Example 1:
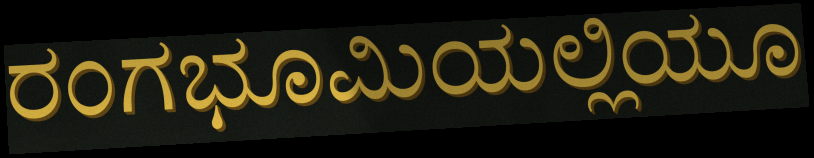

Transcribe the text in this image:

ರಂಗಭೂಮಿಯಲ್ಲಿಯೂ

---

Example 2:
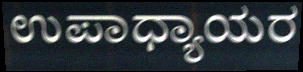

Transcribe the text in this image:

ಉಪಾಧ್ಯಾಯರ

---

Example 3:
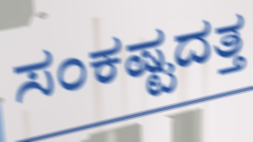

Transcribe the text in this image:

ಸಂಕಷ್ಟದತ್ತ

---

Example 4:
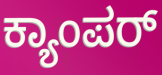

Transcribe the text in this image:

ಕ್ಯಾಂಪರ್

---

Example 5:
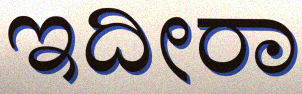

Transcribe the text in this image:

ಇದೀರಾ